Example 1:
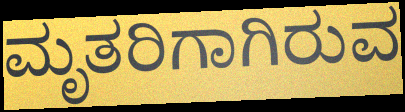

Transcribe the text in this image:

ಮೃತರಿಗಾಗಿರುವ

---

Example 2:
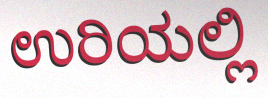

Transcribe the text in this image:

ಉರಿಯಲ್ಲಿ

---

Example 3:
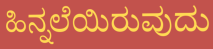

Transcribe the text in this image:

ಹಿನ್ನಲೆಯಿರುವುದು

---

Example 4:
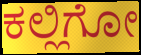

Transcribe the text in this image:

ಕಲ್ಲಿಗೋ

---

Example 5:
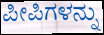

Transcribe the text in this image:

ಪೀಪಿಗಳನ್ನು